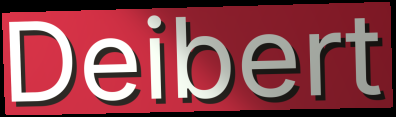
Deibert